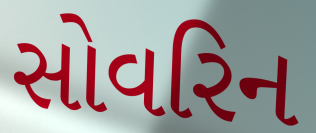
સોવરિન